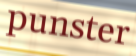
punster